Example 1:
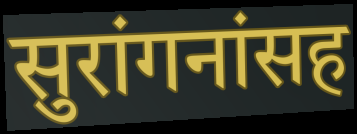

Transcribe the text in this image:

सुरांगनांसह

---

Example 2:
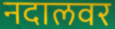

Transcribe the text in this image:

नदालवर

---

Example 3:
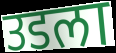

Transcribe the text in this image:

उडला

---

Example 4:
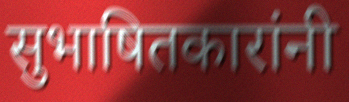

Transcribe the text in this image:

सुभाषितकारांनी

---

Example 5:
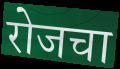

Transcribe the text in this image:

रोजचा